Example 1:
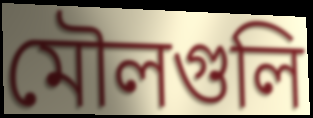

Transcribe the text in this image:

মৌলগুলি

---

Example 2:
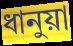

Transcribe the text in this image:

ধানুয়া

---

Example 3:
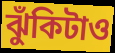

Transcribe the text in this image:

ঝুঁকিটাও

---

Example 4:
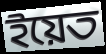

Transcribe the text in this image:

ইয়েত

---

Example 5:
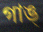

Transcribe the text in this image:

গাঙ্